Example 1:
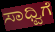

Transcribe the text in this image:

ಸಾಧ್ವಿಗೆ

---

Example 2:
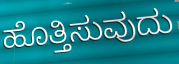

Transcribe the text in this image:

ಹೊತ್ತಿಸುವುದು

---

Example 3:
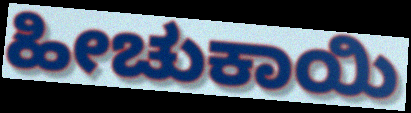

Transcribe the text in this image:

ಹೀಚುಕಾಯಿ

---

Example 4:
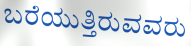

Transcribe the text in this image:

ಬರೆಯುತ್ತಿರುವವರು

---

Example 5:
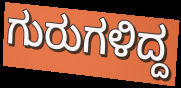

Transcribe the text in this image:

ಗುರುಗಳಿದ್ದ